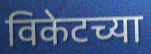
विकेटच्या